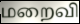
மறைவி